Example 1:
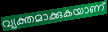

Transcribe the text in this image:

വ്യക്തമാക്കുകയാണ്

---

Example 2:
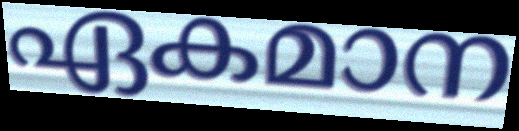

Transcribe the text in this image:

ഏകമാന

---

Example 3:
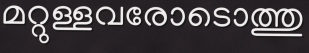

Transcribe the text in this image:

മറ്റുള്ളവരോടൊത്തു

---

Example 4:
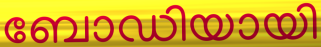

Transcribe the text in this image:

ബോഡിയായി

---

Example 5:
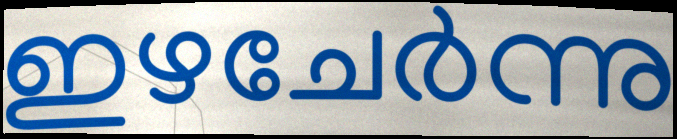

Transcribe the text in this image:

ഇഴചേർന്നു